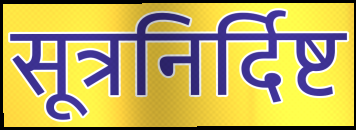
सूत्रनिर्दिष्ट